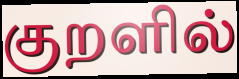
குறளில்